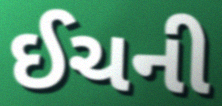
ઈચની